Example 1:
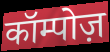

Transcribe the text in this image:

कॉम्पोज़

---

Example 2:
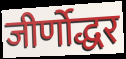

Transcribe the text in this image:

जीर्णोद्धर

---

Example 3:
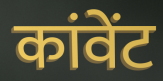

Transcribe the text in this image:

कांवेंट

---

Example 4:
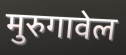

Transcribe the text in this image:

मुरुगावेल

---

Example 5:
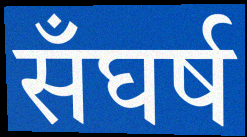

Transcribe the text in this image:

सँघर्ष